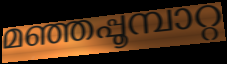
മഞ്ഞപ്പൂമ്പാറ്റ